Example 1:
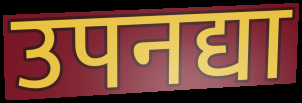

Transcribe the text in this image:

उपनद्या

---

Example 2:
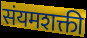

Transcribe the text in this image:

संयमशक्ती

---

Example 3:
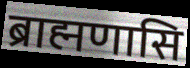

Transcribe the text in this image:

ब्राह्मणासि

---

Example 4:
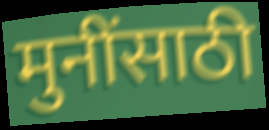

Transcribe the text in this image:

मुनींसाठी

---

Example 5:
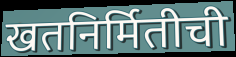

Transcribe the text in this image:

खतनिर्मितीची